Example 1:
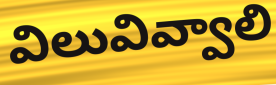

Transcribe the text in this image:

విలువివ్వాలి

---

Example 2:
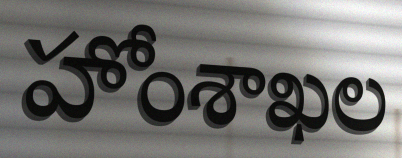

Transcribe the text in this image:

హోంశాఖల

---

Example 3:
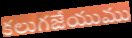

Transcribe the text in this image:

కలుగజేయుము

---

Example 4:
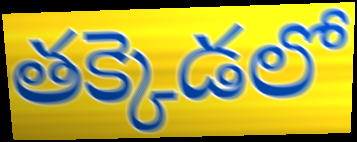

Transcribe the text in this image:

తక్కెడలో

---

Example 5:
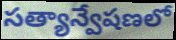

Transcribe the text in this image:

సత్యాన్వేషణలో